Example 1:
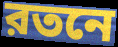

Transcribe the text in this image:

রতনে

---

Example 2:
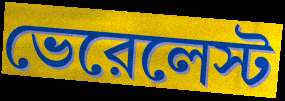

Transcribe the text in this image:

ভেরেলেস্ট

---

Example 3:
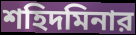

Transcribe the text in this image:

শহিদমিনার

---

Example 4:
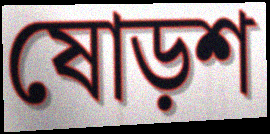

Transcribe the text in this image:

ষোড়শ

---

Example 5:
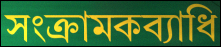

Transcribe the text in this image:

সংক্রামকব্যাধি